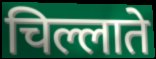
चिल्लाते